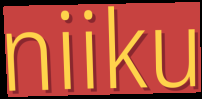
niiku